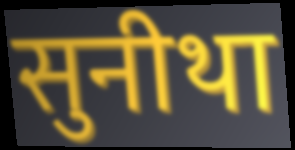
सुनीथा